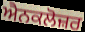
ਐਨਕਲੋਜ਼ਰ